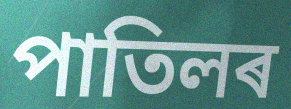
পাতিলৰ